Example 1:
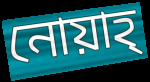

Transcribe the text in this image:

নোয়াহ্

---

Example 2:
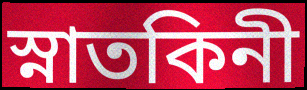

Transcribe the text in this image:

স্নাতকিনী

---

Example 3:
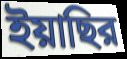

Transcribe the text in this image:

ইয়াছির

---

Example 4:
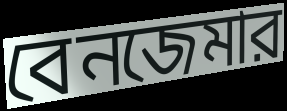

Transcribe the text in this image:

বেনজেমার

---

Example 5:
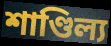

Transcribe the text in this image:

শাণ্ডিল্য